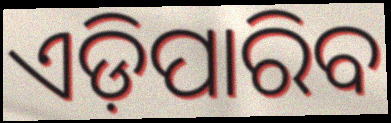
ଏଡ଼ିପାରିବ